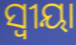
ସ୍ଵୀୟା